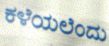
ಕಳೆಯಲೆಂದು